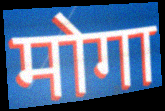
मोगा